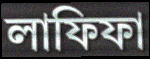
লাফিফা